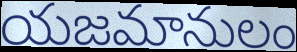
యజమానులం